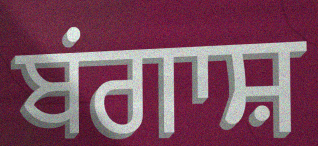
ਬਂਗਾਸ਼